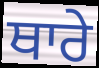
ਥਾਰੇ